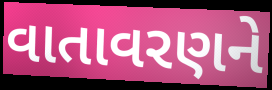
વાતાવરણને